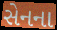
સેનના